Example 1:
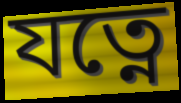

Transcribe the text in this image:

যত্নে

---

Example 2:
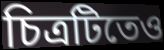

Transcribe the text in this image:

চিত্রটিতেও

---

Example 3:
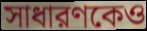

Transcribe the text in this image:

সাধারণকেও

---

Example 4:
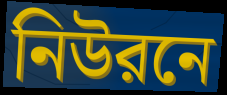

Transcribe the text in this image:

নিউরনে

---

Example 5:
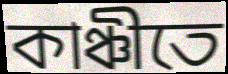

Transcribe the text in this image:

কাঞ্চীতে